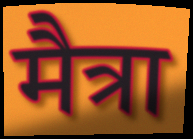
मैत्रा